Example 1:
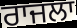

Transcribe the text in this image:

ਰਾਜਲਾ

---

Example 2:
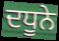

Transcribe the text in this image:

ਦਧੂਨੇ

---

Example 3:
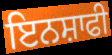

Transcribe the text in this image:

ਇਨਸ਼ਾਫੀ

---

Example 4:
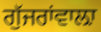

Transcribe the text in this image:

ਗੁੱਜਰਾਂਵਾਲ਼ਾ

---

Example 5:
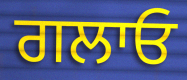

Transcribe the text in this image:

ਗਲਾਓ